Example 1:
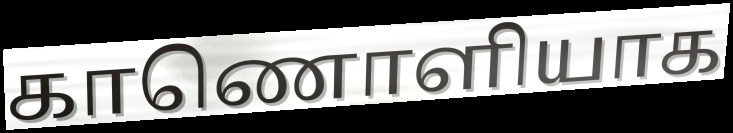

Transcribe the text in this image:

காணொளியாக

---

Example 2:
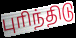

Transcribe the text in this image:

புரிந்திடு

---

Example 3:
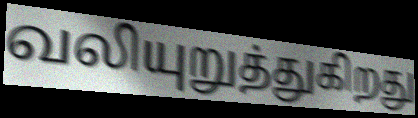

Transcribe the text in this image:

வலியுறுத்துகிறது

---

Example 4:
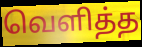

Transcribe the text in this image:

வெளித்த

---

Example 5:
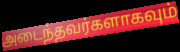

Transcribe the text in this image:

அடைந்தவர்களாகவும்